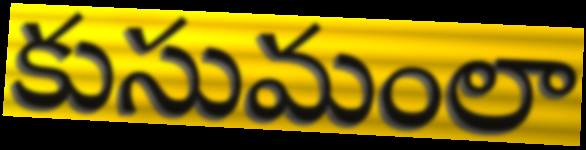
కుసుమంలా